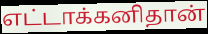
எட்டாக்கனிதான்